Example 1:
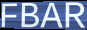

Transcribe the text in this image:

FBAR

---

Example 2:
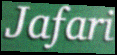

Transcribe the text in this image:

Jafari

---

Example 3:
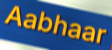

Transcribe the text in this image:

Aabhaar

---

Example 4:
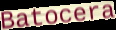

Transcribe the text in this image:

Batocera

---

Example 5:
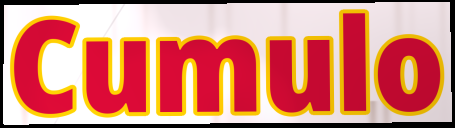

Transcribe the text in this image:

Cumulo